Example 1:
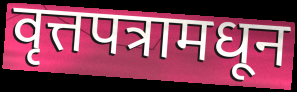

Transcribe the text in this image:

वृत्तपत्रामधून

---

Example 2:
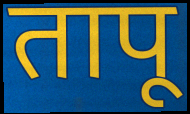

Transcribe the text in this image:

तापू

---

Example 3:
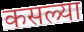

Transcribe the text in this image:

कसल्या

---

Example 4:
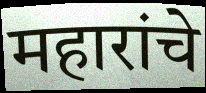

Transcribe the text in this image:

महारांचे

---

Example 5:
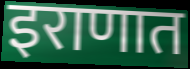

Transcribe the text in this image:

इराणात